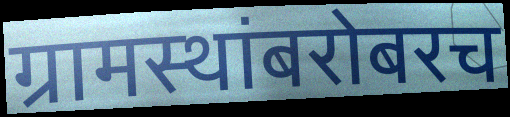
ग्रामस्थांबरोबरच